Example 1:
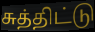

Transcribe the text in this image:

சுத்திட்டு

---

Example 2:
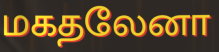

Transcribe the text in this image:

மகதலேனா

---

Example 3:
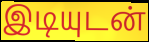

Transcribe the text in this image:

இடியுடன்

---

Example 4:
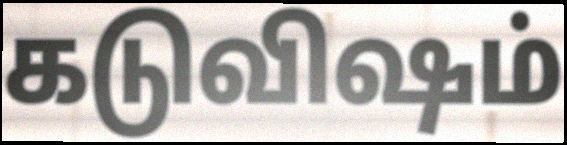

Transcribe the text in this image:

கடுவிஷம்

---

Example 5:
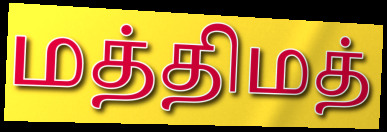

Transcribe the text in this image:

மத்திமத்